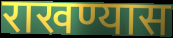
राखण्यास